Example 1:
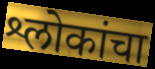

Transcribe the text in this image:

श्लोकांचा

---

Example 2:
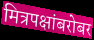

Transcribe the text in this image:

मित्रपक्षांबरोबर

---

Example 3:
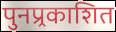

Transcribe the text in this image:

पुनप्र्रकाशित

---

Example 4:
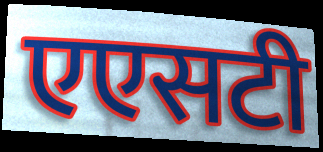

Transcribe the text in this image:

एएसटी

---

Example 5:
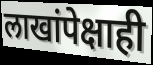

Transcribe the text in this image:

लाखांपेक्षाही